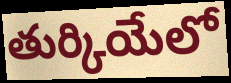
తుర్కియేలో